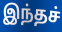
இந்தச்